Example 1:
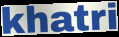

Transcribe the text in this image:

khatri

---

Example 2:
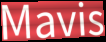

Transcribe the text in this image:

Mavis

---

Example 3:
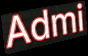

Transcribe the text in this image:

Admi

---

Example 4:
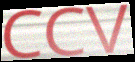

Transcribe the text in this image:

CCV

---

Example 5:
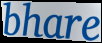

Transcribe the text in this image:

bhare